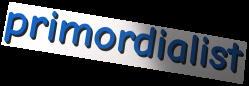
primordialist